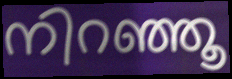
നിറഞ്ഞൂ